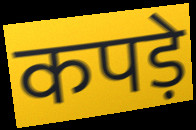
कपड़े